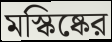
মস্কিষ্কের